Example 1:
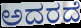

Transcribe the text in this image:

ಅದರದೆ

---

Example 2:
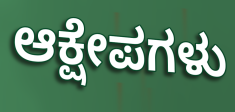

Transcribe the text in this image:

ಆಕ್ಷೇಪಗಳು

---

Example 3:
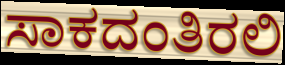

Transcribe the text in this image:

ಸಾಕದಂತಿರಲಿ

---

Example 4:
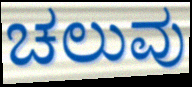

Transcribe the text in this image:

ಚಲುವು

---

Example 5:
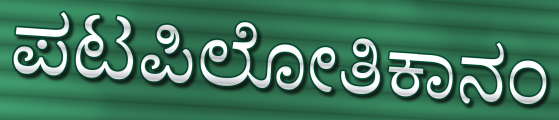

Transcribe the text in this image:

ಪಟಪಿಲೋತಿಕಾನಂ